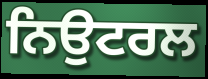
ਨਿਉਟਰਲ